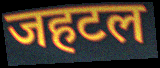
जहटल